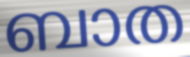
ബാത